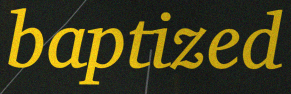
baptized